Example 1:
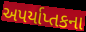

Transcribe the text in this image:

અપર્યાપ્તકના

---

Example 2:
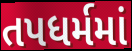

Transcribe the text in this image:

તપધર્મમાં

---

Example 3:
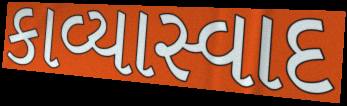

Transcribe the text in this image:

કાવ્યાસ્વાદ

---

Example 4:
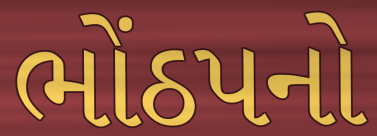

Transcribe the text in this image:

ભોંઠપનો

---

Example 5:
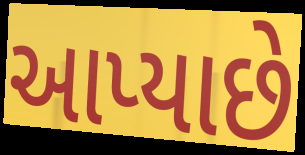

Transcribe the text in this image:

આપ્યાછે